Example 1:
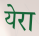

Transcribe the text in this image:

येरा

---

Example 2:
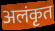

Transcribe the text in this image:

अलंकृत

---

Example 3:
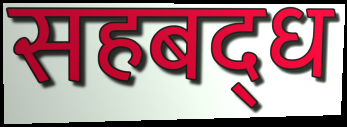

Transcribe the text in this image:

सहबद्ध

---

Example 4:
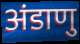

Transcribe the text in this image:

अंडाणु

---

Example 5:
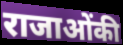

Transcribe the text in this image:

राजाओंकी